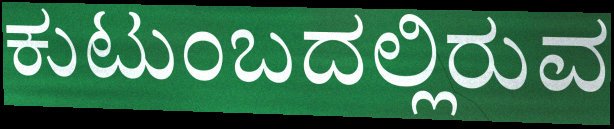
ಕುಟುಂಬದಲ್ಲಿರುವ